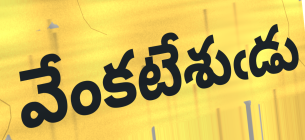
వేంకటేశుఁడు